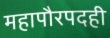
महापौरपदही